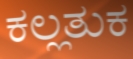
ಕಲ್ಲತುಕ